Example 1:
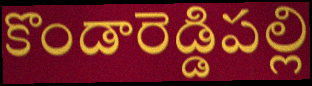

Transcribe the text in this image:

కొండారెడ్డిపల్లి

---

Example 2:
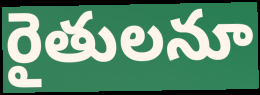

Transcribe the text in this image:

రైతులనూ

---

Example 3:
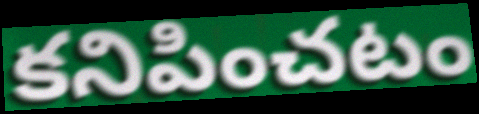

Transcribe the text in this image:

కనిపించటం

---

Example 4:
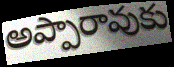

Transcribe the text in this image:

అప్పారావుకు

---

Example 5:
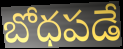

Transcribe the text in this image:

బోధపడే